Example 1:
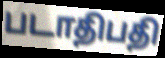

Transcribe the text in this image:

படாதிபதி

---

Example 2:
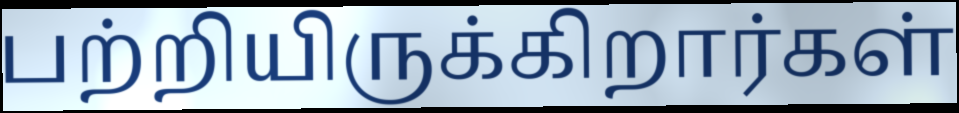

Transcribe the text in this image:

பற்றியிருக்கிறார்கள்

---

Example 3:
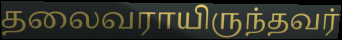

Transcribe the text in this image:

தலைவராயிருந்தவர்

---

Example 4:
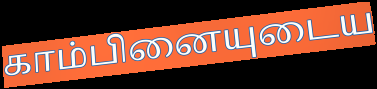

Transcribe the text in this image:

காம்பினையுடைய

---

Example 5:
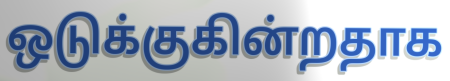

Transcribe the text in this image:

ஒடுக்குகின்றதாக